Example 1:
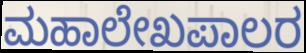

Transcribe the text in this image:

ಮಹಾಲೇಖಪಾಲರ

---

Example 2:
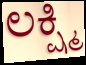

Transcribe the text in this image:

ಲಕ್ಷ್ಮಿ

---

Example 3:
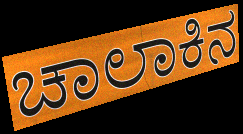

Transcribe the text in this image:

ಚಾಲಾಕಿನ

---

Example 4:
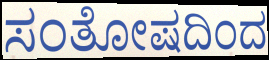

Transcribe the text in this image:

ಸಂತೋಷದಿಂದ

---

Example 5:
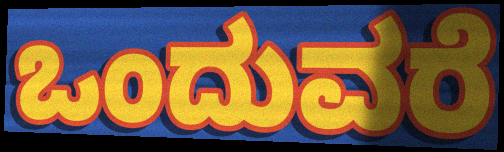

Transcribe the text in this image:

ಒಂದುವರೆ